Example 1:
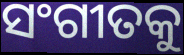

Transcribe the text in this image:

ସଂଗୀତକୁ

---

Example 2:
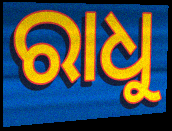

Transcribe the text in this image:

ରାଧୁ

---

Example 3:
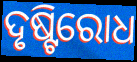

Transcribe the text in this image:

ଦୃଷ୍ଟିରୋଧ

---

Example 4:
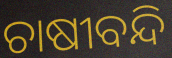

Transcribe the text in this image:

ଚାଷୀବନ୍ଦି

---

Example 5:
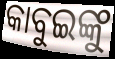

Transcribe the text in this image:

କାବୁଇଙ୍କୁ